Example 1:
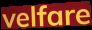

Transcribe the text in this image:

velfare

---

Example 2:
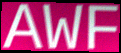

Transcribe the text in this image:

AWF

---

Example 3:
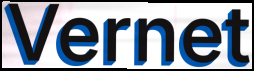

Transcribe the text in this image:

Vernet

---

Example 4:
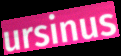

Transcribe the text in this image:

ursinus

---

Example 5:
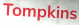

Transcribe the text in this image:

Tompkins